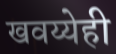
खवय्येही